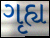
ગૃહ્ય